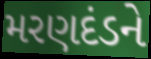
મરણદંડને